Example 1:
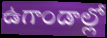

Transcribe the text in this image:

ఉగాండాల్లో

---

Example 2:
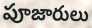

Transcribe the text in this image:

పూజారులు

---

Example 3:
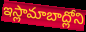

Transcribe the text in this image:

ఇస్లామాబాద్లోని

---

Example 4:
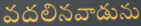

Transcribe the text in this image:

వదలినవాడును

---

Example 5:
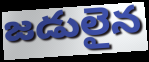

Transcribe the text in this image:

జడులైన